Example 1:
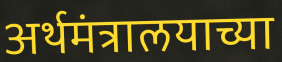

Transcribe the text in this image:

अर्थमंत्रालयाच्या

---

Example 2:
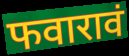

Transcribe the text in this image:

फवारावं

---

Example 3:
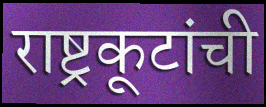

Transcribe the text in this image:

राष्ट्रकूटांची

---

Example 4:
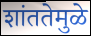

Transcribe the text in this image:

शांततेमुळे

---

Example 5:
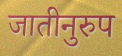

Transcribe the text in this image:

जातीनुरुप